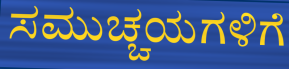
ಸಮುಚ್ಚಯಗಳಿಗೆ